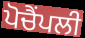
ਪੋਚੈਂਪਲੀ